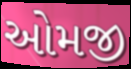
ઓમજી